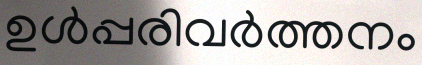
ഉൾപ്പരിവർത്തനം